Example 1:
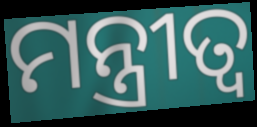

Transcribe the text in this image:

ମନ୍ତ୍ରୀତ୍ୱ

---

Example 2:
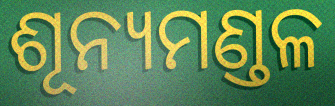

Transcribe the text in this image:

ଶୂନ୍ୟମଣ୍ଡଳ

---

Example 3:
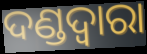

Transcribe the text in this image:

ଦଣ୍ଡଦ୍ବାରା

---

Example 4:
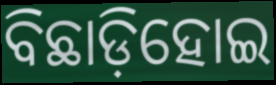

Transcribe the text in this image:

ବିଛାଡ଼ିହୋଇ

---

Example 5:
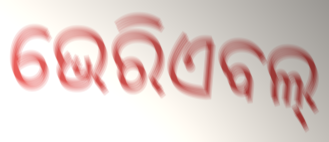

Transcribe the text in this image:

ଭେରିଏବଲ୍